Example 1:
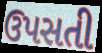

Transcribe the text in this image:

ઉપસતી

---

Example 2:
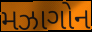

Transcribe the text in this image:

મઝાગોન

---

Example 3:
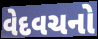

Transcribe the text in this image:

વેદવચનો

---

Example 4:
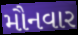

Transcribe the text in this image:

મૌનવાર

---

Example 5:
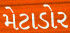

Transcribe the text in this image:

મેટાડોર